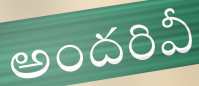
అందరివీ